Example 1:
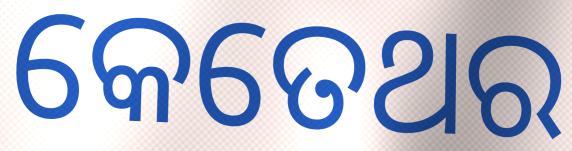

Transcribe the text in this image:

କେତେଥର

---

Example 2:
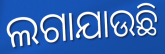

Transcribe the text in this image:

ଲଗାଯାଉଛି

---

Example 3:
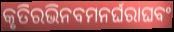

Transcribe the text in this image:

କୃତିରଭିନବମନର୍ଘରାଘବଂ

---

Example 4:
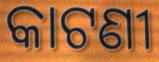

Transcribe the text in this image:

କାଟଣୀ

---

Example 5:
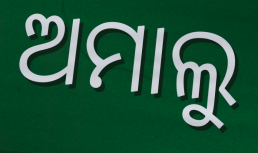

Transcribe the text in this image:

ଅମାଲୁ